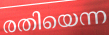
രതിയെന്ന